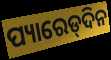
ପ୍ୟାରେଡ୍‌ଦିନ